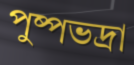
পুষ্পভদ্ৰা